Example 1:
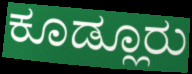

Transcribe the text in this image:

ಕೂಡ್ಲೂರು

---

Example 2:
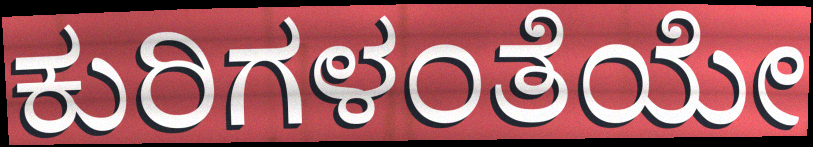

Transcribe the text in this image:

ಕುರಿಗಳಂತೆಯೇ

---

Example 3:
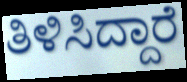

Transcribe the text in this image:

ತಿಳಿಸಿದ್ದಾರೆ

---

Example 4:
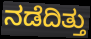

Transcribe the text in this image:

ನಡೆದಿತ್ತು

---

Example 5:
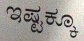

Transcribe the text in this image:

ಇಷ್ಟಕ್ಕೂ